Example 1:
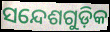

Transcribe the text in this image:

ସନ୍ଦେଶଗୁଡ଼ିକ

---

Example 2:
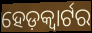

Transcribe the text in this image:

ହେଡ଼କ୍ୱାର୍ଟର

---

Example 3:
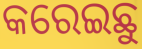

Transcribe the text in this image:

କରେଇଛୁ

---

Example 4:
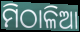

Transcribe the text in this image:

ମିଠାଳିଆ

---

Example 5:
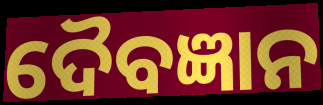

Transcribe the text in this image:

ଦୈବଜ୍ଞାନ